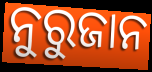
ନୁରୁଜାନ